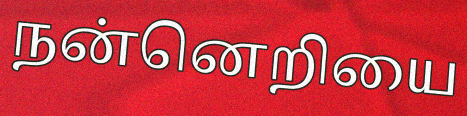
நன்னெறியை